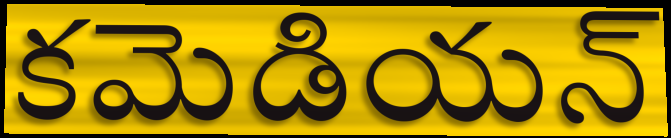
కమెడియన్